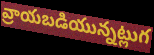
వ్రాయబడియున్నట్లుగ